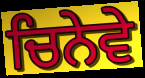
ਚਿਨੇਵੇ